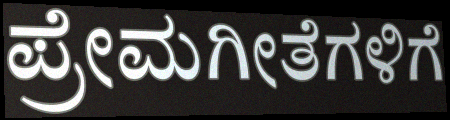
ಪ್ರೇಮಗೀತೆಗಳಿಗೆ